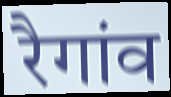
रैगांव